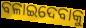
ବଳାଇଦେବାକୁ